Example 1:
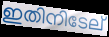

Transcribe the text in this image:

ഇതിനിടേല്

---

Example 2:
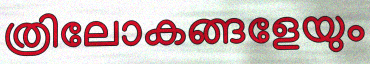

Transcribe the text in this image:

ത്രിലോകങ്ങളേയും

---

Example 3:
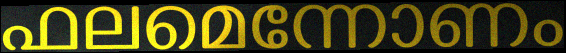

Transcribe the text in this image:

ഫലമെന്നോണം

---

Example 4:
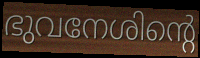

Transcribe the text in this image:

ഭുവനേശിന്റെ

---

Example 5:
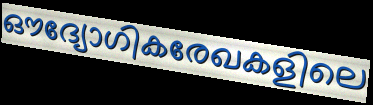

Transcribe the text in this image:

ഔദ്യോഗികരേഖകളിലെ